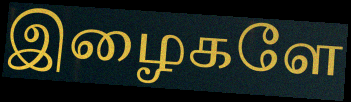
இழைகளே